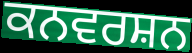
ਕਨਵਰਸ਼ਨ